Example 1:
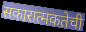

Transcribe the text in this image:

सकारात्मकतेची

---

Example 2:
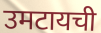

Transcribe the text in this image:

उमटायची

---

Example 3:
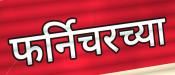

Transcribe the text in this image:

फर्निचरच्या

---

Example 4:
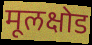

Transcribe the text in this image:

मूलक्षोड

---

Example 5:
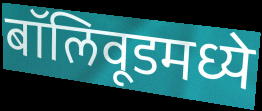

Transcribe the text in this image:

बॉलिवूडमध्ये